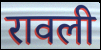
रावली